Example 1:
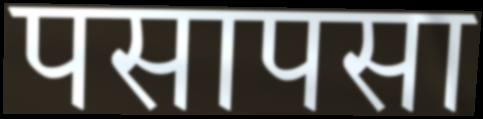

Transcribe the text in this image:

पसापसा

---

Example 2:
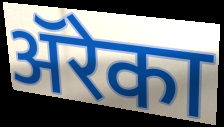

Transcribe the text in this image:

ॲरेका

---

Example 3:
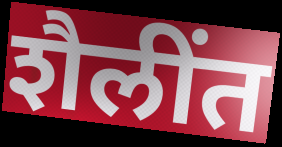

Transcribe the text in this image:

शैलींत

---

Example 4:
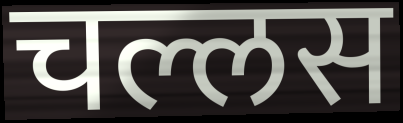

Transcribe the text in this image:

चल्लस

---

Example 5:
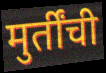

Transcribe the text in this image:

मुर्तींची